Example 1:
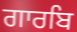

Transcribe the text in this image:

ਗਾਰਬਿ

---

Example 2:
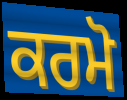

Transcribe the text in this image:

ਕਰਮੋ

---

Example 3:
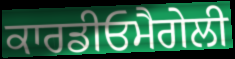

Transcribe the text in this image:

ਕਾਰਡੀਓਮੈਗੇਲੀ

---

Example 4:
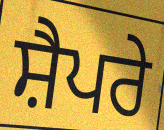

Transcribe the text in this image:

ਸ਼ੈਪਰੇ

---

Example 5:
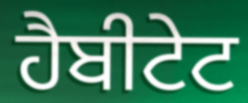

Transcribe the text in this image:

ਹੈਬੀਟੇਟ